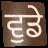
ਵੁਡੇ